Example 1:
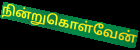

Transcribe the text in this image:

நின்றுகொள்வேன்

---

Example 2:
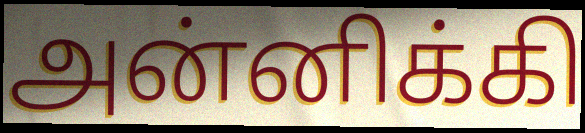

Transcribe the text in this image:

அன்னிக்கி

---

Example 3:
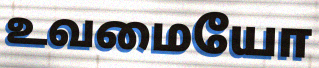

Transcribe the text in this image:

உவமையோ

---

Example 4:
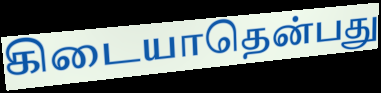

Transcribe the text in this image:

கிடையாதென்பது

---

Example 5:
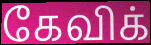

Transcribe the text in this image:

கேவிக்